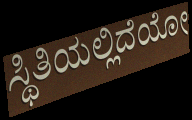
ಸ್ಥಿತಿಯಲ್ಲಿದೆಯೋ